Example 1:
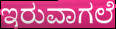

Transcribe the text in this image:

ಇರುವಾಗಲೆ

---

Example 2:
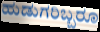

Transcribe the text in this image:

ಹುಡುಗರಿಬ್ಬರೂ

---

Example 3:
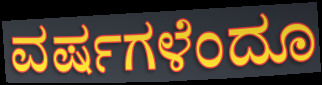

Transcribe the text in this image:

ವರ್ಷಗಳೆಂದೂ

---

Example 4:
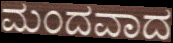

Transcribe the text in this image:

ಮಂದವಾದ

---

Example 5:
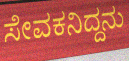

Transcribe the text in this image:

ಸೇವಕನಿದ್ದನು